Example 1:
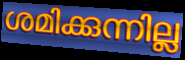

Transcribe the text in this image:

ശമിക്കുന്നില്ല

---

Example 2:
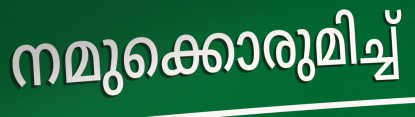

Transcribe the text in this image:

നമുക്കൊരുമിച്ച്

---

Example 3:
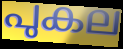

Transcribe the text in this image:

പുകല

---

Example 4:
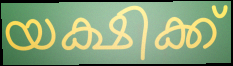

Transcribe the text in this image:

യക്ഷിക്ക്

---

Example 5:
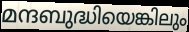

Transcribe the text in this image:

മന്ദബുദ്ധിയെങ്കിലും